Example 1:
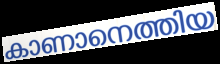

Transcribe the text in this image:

കാണാനെത്തിയ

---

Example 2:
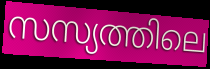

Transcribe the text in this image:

സസ്യത്തിലെ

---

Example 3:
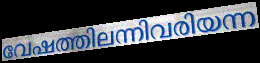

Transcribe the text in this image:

വേഷത്തിലന്നിവരിയന്ന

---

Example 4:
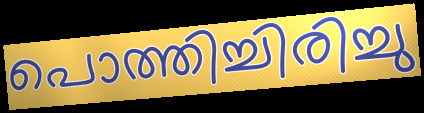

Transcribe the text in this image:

പൊത്തിച്ചിരിച്ചു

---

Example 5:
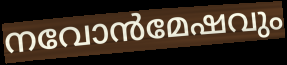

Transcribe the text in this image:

നവോൻമേഷവും